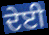
ਦੇਈ